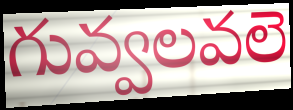
గువ్వలవలె